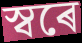
স্বৰে